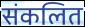
संकलित